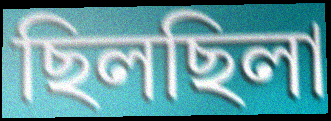
ছিলছিলা